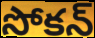
సోకన్